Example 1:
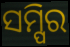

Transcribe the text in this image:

ସମ୍ପିର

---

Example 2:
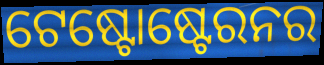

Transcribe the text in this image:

ଟେଷ୍ଟୋଷ୍ଟେରନର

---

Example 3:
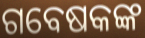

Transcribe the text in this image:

ଗବେଷକଙ୍କ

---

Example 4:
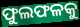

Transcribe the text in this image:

ଫୁଲଫଳକୁ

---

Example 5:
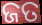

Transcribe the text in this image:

ଜତ